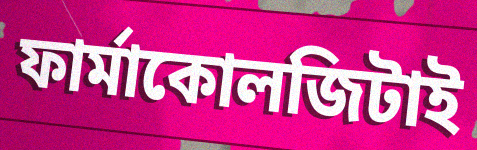
ফার্মাকোলজিটাই